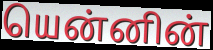
யென்னின்